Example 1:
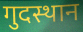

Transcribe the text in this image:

गुदस्थान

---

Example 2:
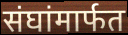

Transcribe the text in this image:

संघांमार्फत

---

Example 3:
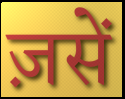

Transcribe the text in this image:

ज़सें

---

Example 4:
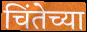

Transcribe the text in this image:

चिंतेच्या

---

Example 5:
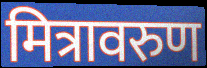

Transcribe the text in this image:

मित्रावरुण